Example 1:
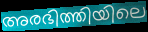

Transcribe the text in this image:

അരഭിത്തിയിലെ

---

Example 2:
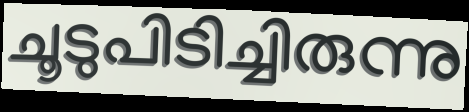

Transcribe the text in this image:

ചൂടുപിടിച്ചിരുന്നു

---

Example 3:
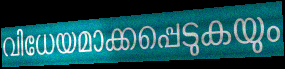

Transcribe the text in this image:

വിധേയമാക്കപ്പെടുകയും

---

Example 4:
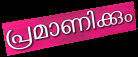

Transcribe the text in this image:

പ്രമാണിക്കും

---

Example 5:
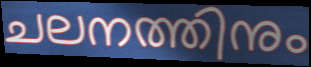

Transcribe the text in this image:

ചലനത്തിനും